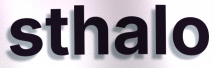
sthalo